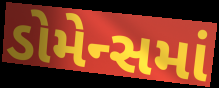
ડોમેન્સમાં